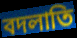
বদলাতি